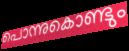
പൊന്നുകൊണ്ടും